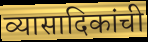
व्यासादिकांची